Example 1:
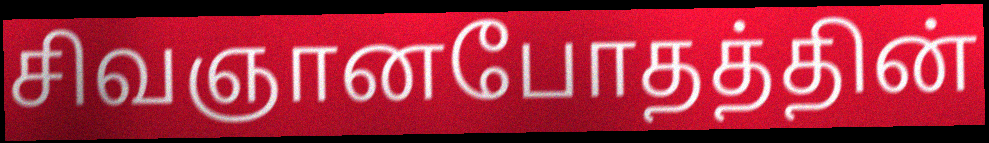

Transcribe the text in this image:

சிவஞானபோதத்தின்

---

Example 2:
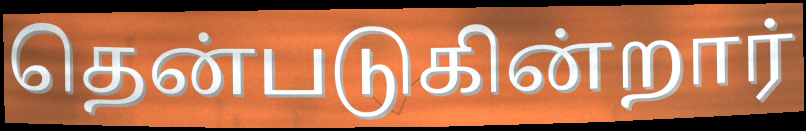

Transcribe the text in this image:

தென்படுகின்றார்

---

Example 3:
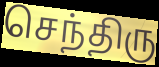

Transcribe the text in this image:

செந்திரு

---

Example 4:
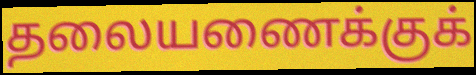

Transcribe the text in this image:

தலையணைக்குக்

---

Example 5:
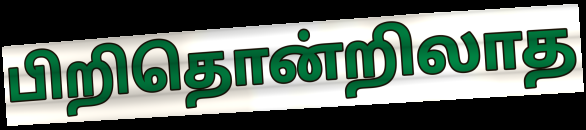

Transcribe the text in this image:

பிறிதொன்றிலாத